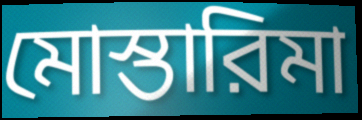
মোস্তারিমা